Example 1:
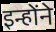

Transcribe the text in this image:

इन्होंने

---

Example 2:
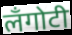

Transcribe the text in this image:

लँगोटी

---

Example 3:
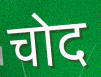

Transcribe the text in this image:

चोद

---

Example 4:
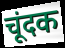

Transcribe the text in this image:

चूंदक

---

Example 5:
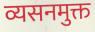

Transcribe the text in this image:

व्यसनमुक्त